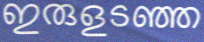
ഇരുളടഞ്ഞ